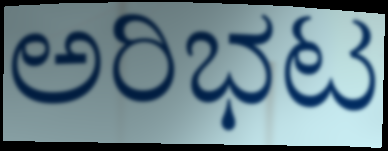
ಅರಿಭಟ